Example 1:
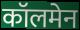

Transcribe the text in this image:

कॉलमेन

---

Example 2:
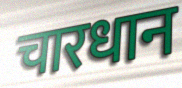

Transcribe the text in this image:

चारधान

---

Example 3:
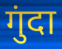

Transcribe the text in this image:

गुंदा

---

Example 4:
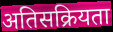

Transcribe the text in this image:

अतिसक्रियता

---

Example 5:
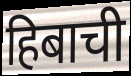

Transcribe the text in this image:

हिबाची